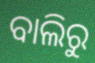
ବାଲିରୁ